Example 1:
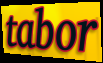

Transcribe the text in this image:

tabor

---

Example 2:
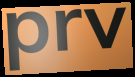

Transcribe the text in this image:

prv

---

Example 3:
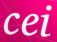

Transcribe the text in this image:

cei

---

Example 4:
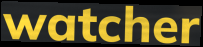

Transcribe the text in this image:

watcher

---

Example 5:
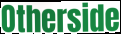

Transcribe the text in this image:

Otherside